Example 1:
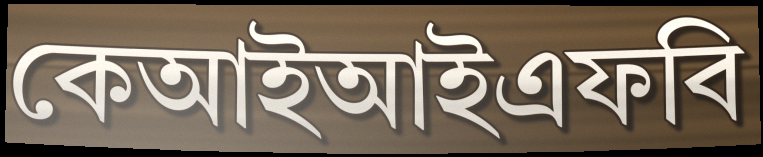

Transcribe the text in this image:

কেআইআইএফবি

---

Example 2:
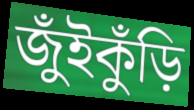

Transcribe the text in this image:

জুঁইকুঁড়ি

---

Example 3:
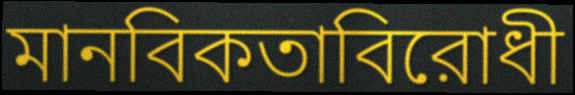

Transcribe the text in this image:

মানবিকতাবিরোধী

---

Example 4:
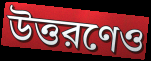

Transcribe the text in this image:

উত্তরণেও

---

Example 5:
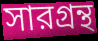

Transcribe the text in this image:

সারগ্রন্থ